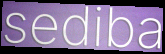
sediba